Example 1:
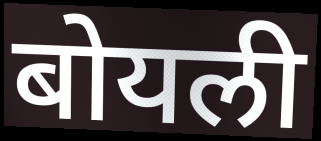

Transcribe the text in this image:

बोयली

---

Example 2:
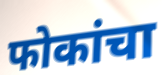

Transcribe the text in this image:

फोकांचा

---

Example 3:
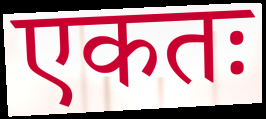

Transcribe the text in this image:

एकतः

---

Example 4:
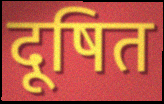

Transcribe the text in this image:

दूषित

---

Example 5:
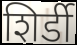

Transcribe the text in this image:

शिर्डी